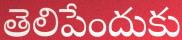
తెలిపేందుకు